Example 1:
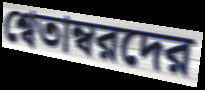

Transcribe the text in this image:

শ্বেতাম্বরদের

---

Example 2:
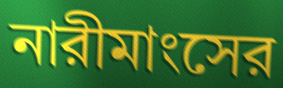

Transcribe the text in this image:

নারীমাংসের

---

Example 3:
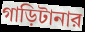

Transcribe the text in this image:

গাড়িটানার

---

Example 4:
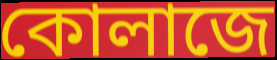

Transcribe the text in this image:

কোলাজে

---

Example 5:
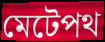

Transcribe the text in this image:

মেটেপথ